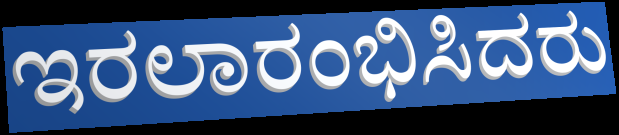
ಇರಲಾರಂಭಿಸಿದರು